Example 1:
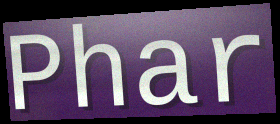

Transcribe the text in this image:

Phar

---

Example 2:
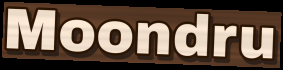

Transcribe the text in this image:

Moondru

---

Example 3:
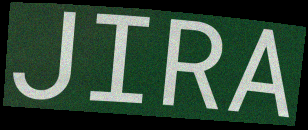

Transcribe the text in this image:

JIRA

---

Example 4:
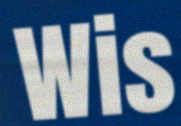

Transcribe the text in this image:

Wis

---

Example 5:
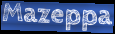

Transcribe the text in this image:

Mazeppa